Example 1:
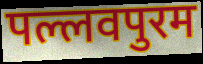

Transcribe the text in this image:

पल्लवपुरम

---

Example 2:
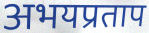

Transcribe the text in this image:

अभयप्रताप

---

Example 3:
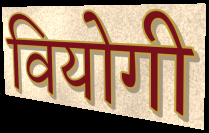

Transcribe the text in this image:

वियोगी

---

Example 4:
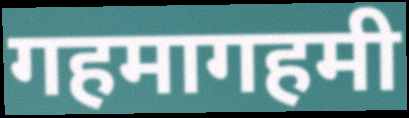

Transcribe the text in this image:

गहमागहमी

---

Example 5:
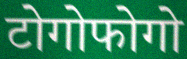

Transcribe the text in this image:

टोगोफोगो